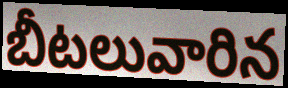
బీటలువారిన